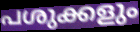
പശുക്കളും